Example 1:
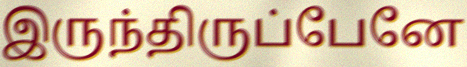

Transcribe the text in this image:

இருந்திருப்பேனே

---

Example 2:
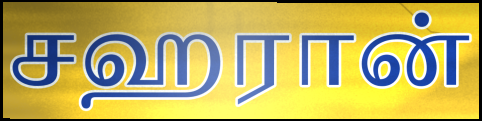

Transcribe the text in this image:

சஹரான்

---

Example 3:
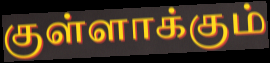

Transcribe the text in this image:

குள்ளாக்கும்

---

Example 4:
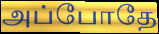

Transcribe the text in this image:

அப்போதே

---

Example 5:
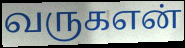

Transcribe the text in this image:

வருகஎன்